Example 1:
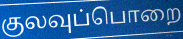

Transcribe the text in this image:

குலவுப்பொறை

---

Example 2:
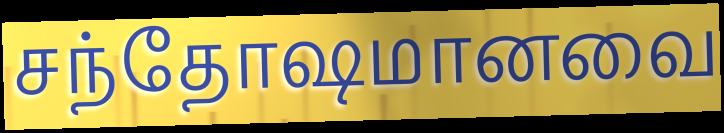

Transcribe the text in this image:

சந்தோஷமானவை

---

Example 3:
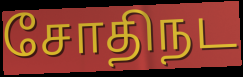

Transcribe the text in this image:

சோதிநட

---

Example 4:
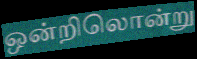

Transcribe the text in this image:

ஒன்றிலொன்று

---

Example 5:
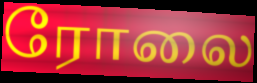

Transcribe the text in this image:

ரோலை